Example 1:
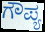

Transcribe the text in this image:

ಗೌಪ್ಯ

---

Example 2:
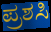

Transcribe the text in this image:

ಪ್ರಶಸಿ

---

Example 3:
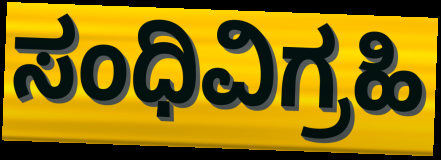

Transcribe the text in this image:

ಸಂಧಿವಿಗ್ರಹಿ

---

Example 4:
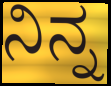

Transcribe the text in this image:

ನಿನ್ನ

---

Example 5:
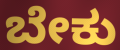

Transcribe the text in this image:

ಬೇಕು